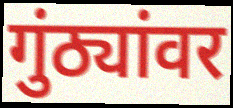
गुंठ्यांवर